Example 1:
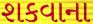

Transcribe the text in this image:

શકવાના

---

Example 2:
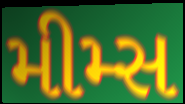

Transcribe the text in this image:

મીમ્સ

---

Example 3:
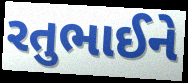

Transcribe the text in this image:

રતુભાઈને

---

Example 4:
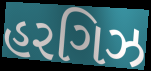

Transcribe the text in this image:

હરગિઝ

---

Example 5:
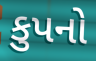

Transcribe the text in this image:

કુપનો